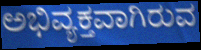
ಅಭಿವ್ಯಕ್ತವಾಗಿರುವ